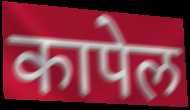
कापेल